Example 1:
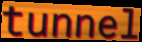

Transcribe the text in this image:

tunnel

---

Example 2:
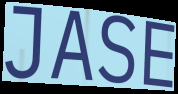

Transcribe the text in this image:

JASE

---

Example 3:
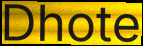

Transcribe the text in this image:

Dhote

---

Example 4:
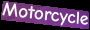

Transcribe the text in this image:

Motorcycle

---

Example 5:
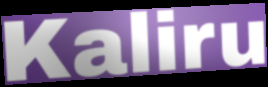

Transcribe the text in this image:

Kaliru